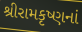
શ્રીરામકૃષ્ણનાં